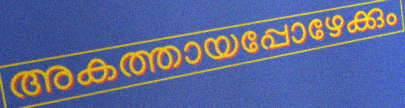
അകത്തായപ്പോഴേക്കും